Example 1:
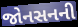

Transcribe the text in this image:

જોનસનની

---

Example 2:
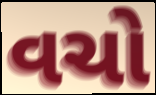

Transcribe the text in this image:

વચો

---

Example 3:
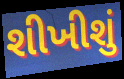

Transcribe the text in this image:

શીખીશું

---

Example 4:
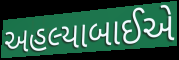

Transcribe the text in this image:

અહલ્યાબાઈએ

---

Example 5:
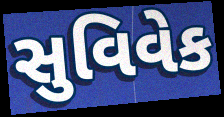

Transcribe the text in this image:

સુવિવેક